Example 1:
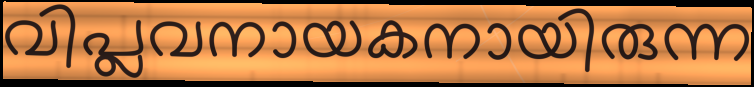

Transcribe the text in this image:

വിപ്ലവനായകനായിരുന്ന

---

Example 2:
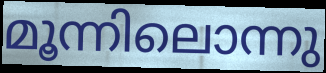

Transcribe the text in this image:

മൂന്നിലൊന്നു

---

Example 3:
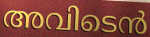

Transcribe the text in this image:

അവിടെൻ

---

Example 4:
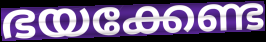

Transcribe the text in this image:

ഭയക്കേണ്ട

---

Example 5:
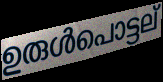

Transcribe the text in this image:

ഉരുൾപൊട്ടല്